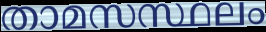
താമസസ്ഥലം